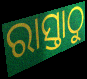
ରାସ୍ତାଠୁ